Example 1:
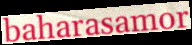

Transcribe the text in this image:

baharasamor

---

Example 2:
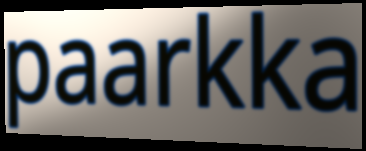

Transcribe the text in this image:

paarkka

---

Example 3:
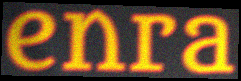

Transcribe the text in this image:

enra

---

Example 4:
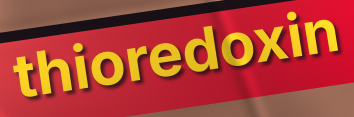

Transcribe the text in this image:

thioredoxin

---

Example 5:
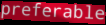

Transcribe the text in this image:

preferable